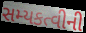
સમ્યકત્વીની